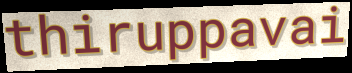
thiruppavai